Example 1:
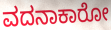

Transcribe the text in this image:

ವದನಾಕಾರೋ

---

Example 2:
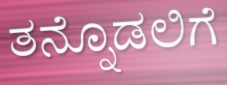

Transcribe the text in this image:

ತನ್ನೊಡಲಿಗೆ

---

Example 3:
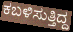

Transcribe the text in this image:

ಕಬಳಿಸುತ್ತಿದ್ದ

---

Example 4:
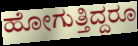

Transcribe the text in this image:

ಹೋಗುತ್ತಿದ್ದರೂ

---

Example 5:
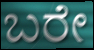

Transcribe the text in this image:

ಬರೇ